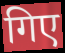
गिए